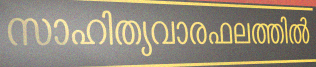
സാഹിത്യവാരഫലത്തിൽ